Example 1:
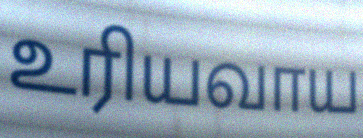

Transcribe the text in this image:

உரியவாய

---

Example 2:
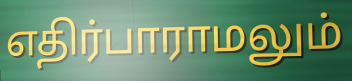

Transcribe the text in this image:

எதிர்பாராமலும்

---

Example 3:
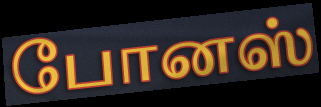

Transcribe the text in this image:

போனஸ்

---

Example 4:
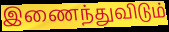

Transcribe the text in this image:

இணைந்துவிடும்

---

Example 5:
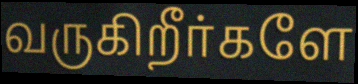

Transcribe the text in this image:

வருகிறீர்களே